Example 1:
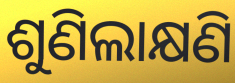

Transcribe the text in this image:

ଶୁଣିଲାକ୍ଷଣି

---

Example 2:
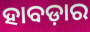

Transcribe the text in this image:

ହାବଡ଼ାର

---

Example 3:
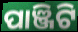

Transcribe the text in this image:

ପାଞ୍ଜିଟି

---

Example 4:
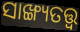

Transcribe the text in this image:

ସାଙ୍ଖ୍ୟତତ୍ତ୍ଵ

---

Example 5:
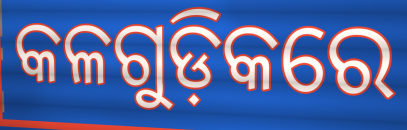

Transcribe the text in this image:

କଳଗୁଡ଼ିକରେ